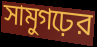
সামুগঢ়ের